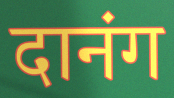
दानंग